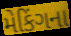
મેકિંગના